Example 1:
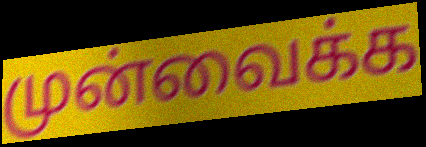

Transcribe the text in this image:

முன்வைக்க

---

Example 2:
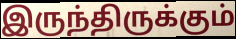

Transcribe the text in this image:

இருந்திருக்கும்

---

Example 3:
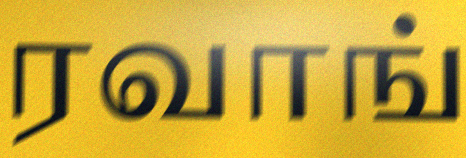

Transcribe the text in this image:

ரவாங்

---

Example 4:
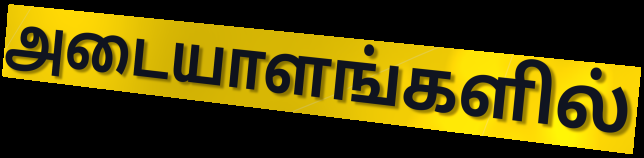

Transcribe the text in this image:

அடையாளங்களில்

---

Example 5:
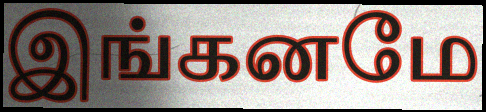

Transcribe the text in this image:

இங்கனமே